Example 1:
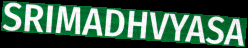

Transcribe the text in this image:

SRIMADHVYASA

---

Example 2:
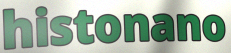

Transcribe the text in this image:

histonano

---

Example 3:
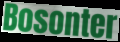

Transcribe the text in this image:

Bosonter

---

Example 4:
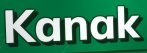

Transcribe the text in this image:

Kanak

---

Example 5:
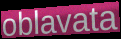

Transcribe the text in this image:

oblavata